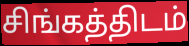
சிங்கத்திடம்